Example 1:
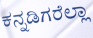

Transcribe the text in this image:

ಕನ್ನಡಿಗರೆಲ್ಲಾ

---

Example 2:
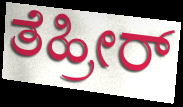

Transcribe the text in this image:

ತೆಹ್ರೀರ್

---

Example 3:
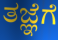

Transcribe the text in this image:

ತಜ್ಞೆಗೆ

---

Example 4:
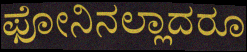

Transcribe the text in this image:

ಫೋನಿನಲ್ಲಾದರೂ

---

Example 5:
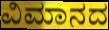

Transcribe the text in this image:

ವಿಮಾನದ